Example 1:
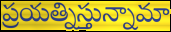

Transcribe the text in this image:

ప్రయత్నిస్తున్నామా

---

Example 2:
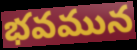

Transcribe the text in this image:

భవమున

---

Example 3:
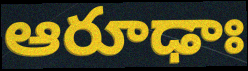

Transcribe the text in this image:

ఆరూఢాః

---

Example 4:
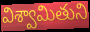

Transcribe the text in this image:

విశ్వామితుని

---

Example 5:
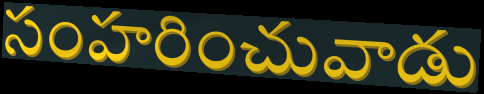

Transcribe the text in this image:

సంహరించువాడు